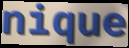
nique